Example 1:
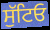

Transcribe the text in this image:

ਸੁੱਟਿਓ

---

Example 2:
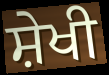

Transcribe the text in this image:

ਸ਼ੇਖੀ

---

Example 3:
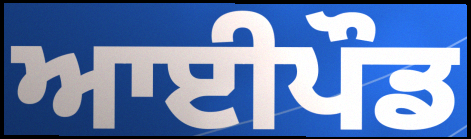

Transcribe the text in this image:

ਆਈਪੌਡ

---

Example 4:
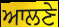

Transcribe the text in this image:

ਆਲਣੇ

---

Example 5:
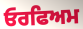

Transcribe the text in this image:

ਓਰਫਿਅਮ